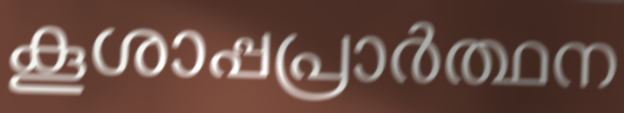
കൂശാപ്പപ്രാർത്ഥന